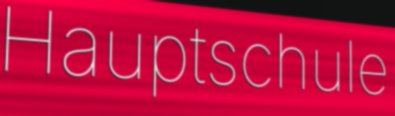
Hauptschule